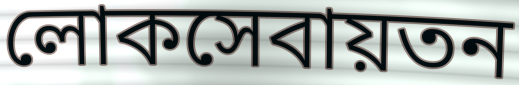
লোকসেবায়তন